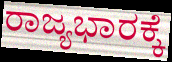
ರಾಜ್ಯಭಾರಕ್ಕೆ